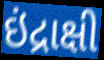
ઇંદ્રાક્ષી